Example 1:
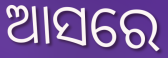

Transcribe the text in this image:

ଆସରେ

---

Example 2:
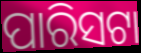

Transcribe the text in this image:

ପାରିସଟା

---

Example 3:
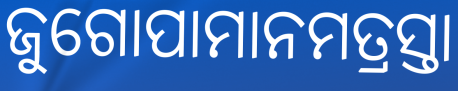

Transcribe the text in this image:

ଜୁଗୋପାମାନମତ୍ରସ୍ତା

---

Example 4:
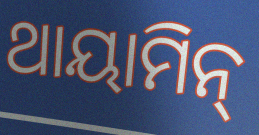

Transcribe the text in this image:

ଥାୟାମିନ୍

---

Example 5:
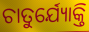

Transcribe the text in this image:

ଚାତୁର୍ଯ୍ୟୋକ୍ତି